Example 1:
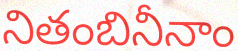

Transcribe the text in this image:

నితంబినీనాం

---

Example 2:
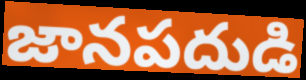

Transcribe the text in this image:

జానపదుడి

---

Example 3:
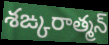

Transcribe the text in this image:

శఙ్కరాత్మన్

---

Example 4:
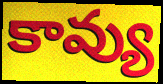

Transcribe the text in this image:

కావ్యు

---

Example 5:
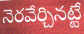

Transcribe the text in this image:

నెరవేర్చినట్టే